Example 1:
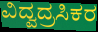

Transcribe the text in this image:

ವಿದ್ವದ್ರಸಿಕರ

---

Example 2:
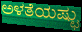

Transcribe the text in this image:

ಅಳತೆಯಷ್ಟು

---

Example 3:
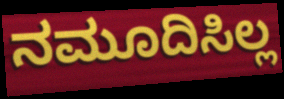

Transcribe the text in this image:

ನಮೂದಿಸಿಲ್ಲ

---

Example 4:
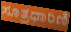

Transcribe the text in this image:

ಸೂತ್ರಧಾರಿಣಿ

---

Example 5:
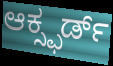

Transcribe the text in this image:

ಆಕ್ಸ್ಫರ್ಡ್